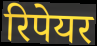
रिपेयर